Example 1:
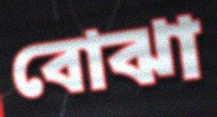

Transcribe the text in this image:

বোঝা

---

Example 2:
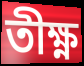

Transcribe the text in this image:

তীক্ষ্ণ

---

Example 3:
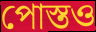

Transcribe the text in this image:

পোস্তও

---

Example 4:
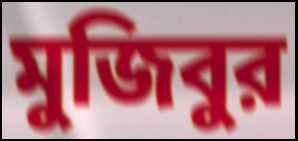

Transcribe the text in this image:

মুজিবুর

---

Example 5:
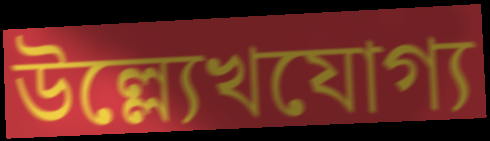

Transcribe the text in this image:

উল্ল্যেখযোগ্য